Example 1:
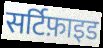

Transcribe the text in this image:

सर्टिफ़ाइड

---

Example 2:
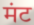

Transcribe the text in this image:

मंट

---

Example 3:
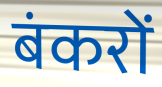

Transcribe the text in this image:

बंकरों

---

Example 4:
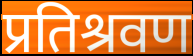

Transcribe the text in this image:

प्रतिश्रवण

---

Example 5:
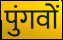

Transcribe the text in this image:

पुंगवों